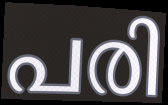
പരി